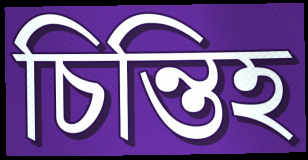
চিন্তিহ